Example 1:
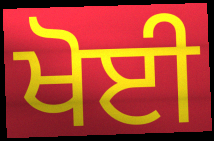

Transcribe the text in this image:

ਖੋਈ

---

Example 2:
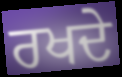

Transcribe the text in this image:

ਰਖਦੇ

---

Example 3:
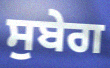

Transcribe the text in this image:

ਸੁਬੇਗ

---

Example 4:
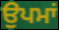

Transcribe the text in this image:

ਉਪਮਾਂ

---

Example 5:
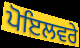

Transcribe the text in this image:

ਪੋਇਲਵਰੇ